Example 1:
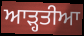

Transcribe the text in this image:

ਆੜ੍ਹਤੀਆ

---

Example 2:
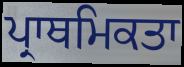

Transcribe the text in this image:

ਪ੍ਰਾਥਮਿਕਤਾ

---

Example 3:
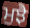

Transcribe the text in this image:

ਮੁਝੈ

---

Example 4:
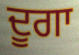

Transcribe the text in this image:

ਦੂਗਾ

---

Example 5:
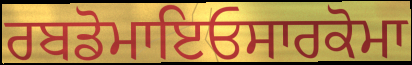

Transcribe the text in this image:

ਰਬਡੋਮਾਇਓਸਾਰਕੋਮਾ